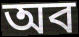
অব